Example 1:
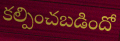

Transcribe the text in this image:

కల్పించబడిందో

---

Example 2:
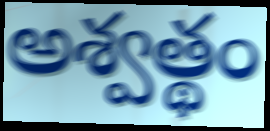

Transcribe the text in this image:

అశ్వత్థం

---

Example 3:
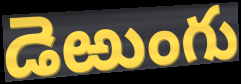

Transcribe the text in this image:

డెఱుంగు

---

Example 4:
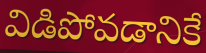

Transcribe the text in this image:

విడిపోవడానికే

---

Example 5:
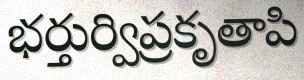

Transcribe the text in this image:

భర్తుర్విప్రకృతాపి